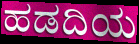
ಹಡದಿಯ